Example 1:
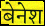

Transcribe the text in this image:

बेनेश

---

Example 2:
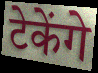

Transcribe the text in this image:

टेकेंगे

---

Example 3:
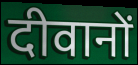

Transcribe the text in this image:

दीवानों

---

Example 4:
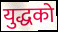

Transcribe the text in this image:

युद्धको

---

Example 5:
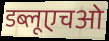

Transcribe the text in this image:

डब्लूएचओ